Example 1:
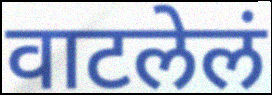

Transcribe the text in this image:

वाटलेलं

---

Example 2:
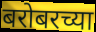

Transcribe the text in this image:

बरोबरच्या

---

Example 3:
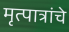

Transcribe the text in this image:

मृत्पात्रांचे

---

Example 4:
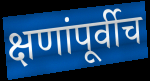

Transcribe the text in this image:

क्षणांपूर्वीच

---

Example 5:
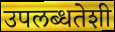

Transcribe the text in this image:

उपलब्धतेशी